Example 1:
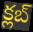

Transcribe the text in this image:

క్లబ్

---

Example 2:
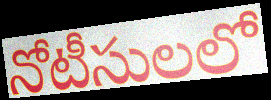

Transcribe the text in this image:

నోటీసులలో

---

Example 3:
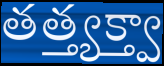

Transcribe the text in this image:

తత్త్యక్త్వా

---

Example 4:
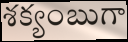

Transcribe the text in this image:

శక్యంబుగా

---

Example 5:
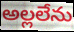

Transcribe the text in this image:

అల్లలేను